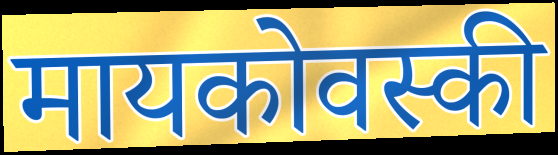
मायकोवस्की